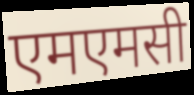
एमएमसी